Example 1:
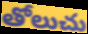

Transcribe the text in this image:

తోలుచు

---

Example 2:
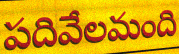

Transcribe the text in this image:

పదివేలమంది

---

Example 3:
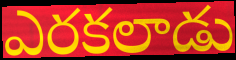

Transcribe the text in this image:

ఎరకలాడు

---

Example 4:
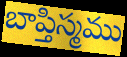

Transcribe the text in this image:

బాప్తిస్మము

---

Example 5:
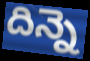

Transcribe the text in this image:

దిన్నె